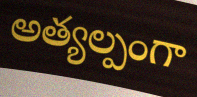
అత్యల్పంగా